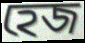
হেজ